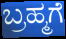
ಬ್ರಹ್ಮಗೆ